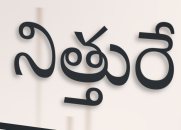
నిత్తురే